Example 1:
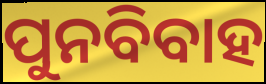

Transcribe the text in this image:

ପୁନବିବାହ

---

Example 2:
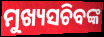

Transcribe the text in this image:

ମୁଖ୍ୟସଚିବଙ୍କ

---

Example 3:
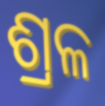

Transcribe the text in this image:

ଶ୍ରଳ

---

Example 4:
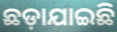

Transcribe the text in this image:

ଛଡ଼ାଯାଇଛି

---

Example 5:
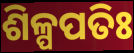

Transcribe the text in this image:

ଶିଳ୍ପପତିଃ